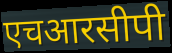
एचआरसीपी